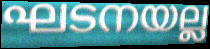
ഘടനയല്ല